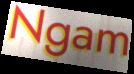
Ngam